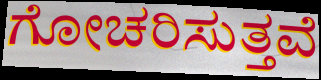
ಗೋಚರಿಸುತ್ತವೆ